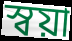
স্বয়া